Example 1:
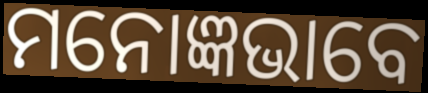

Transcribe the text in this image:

ମନୋଜ୍ଞଭାବେ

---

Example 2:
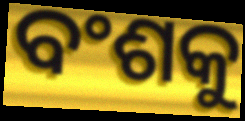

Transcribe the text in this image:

ବଂଶକୁ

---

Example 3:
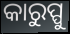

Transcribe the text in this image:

କାରୁପ୍ପୁ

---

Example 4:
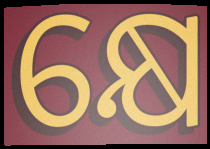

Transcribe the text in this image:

କ୍ଷେ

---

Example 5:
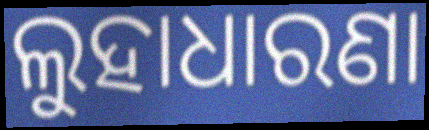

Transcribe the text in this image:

ଲୁହାଧାରଣା